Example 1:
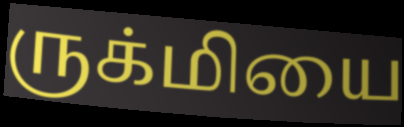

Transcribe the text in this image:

ருக்மியை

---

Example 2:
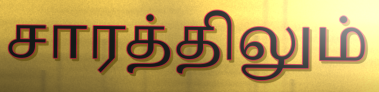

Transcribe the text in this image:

சாரத்திலும்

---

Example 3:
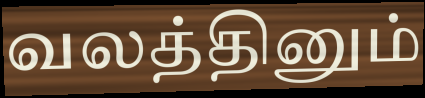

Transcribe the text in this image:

வலத்தினும்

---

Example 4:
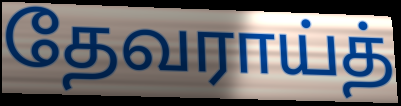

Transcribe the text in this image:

தேவராய்த்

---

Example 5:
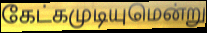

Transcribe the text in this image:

கேட்கமுடியுமென்று